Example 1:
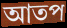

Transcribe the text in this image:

আতপ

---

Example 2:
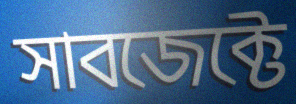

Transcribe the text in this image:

সাবজেক্টে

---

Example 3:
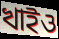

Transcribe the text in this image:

খাইও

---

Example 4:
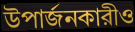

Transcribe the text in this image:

উপার্জনকারীও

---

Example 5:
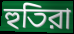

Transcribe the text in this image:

হুতিরা